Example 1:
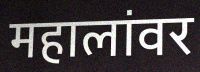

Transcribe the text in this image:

महालांवर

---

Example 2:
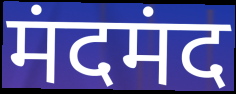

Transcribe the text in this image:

मंदमंद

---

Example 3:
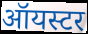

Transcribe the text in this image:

ऑयस्टर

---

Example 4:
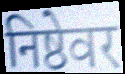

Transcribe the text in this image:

निष्ठेवर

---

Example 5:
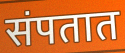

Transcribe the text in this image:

संपतात